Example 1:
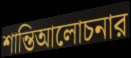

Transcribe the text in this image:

শান্তিআলোচনার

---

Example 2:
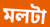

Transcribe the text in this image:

মলটা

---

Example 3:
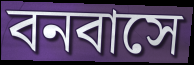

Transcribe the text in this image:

বনবাসে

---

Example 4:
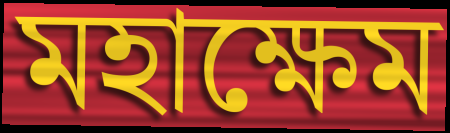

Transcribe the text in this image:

মহাক্ষেম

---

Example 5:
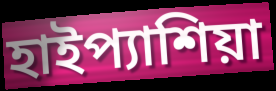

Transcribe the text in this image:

হাইপ্যাশিয়া